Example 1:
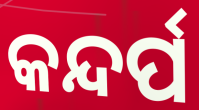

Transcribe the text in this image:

କନ୍ଦର୍ପ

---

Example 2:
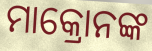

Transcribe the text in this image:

ମାକ୍ରୋନଙ୍କ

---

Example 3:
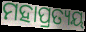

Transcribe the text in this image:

ମହାପ୍ରତ୍ୟୟ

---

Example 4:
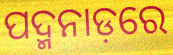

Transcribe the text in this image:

ପଦ୍ମନାଡ଼ରେ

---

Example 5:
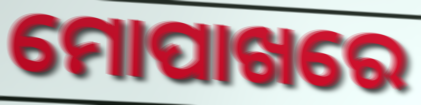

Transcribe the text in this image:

ମୋପାଖରେ